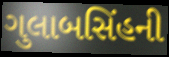
ગુલાબસિંહની